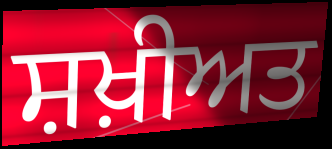
ਸ਼ਖ਼ੀਅਤ